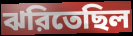
ঝরিতেছিল